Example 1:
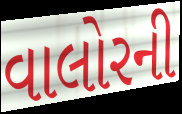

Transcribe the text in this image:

વાલોરની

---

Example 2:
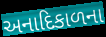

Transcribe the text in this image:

અનાદિકાળના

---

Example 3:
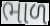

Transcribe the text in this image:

ભાળ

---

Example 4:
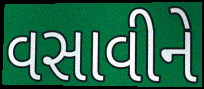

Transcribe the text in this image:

વસાવીને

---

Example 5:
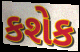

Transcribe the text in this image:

કશેક